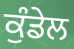
ਕੁੰਡੇਲ